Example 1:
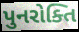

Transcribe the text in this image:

પુનરોક્તિ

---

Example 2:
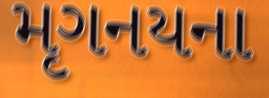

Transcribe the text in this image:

મૃગનયના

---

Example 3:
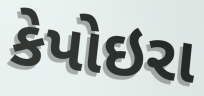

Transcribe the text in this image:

કેપોઇરા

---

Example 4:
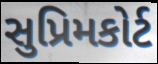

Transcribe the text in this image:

સુપ્રિમકોર્ટ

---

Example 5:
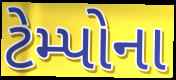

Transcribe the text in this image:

ટેમ્પોના